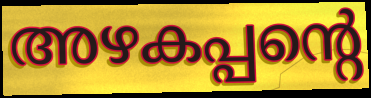
അഴകപ്പന്റെ